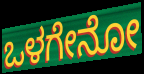
ಒಳಗೇನೋ